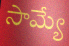
సామ్యే